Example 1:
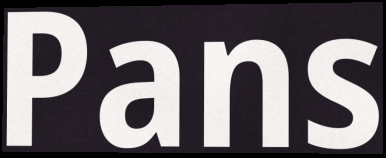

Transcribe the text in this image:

Pans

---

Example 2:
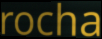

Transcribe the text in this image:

rocha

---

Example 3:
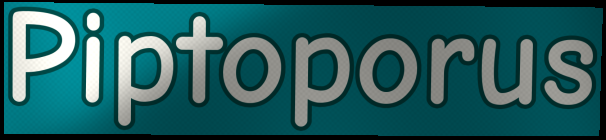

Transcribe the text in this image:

Piptoporus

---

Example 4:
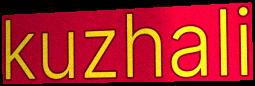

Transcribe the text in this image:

kuzhali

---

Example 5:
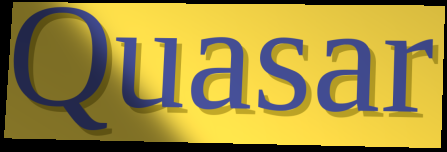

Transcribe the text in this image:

Quasar